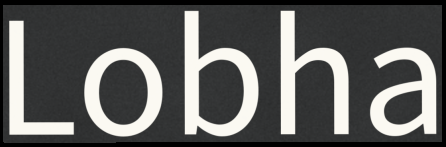
Lobha